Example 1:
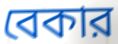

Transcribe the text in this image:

বেকার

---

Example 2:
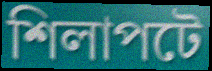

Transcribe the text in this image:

শিলাপটে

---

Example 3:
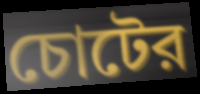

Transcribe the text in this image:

চোটের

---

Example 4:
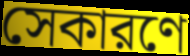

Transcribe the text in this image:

সেকারণে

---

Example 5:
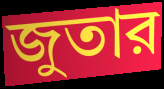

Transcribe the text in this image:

জুতার